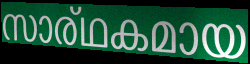
സാര്ഥകമായ